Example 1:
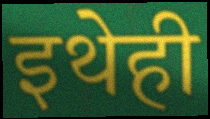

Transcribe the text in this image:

इथेही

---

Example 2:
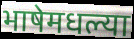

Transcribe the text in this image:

भाषेमधल्या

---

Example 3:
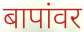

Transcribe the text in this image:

बापांवर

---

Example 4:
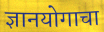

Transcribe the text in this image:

ज्ञानयोगाचा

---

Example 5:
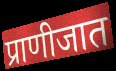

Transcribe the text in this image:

प्राणीजात